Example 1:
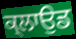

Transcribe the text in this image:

ਕ੍ਲਾਉਡ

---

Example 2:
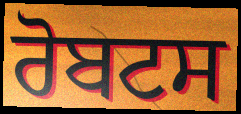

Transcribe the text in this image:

ਰੋਬਟਸ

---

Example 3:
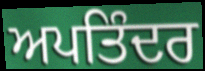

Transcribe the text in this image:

ਅਪਤਿੰਦਰ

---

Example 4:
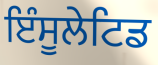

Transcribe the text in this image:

ਇੰਸੂਲੇਟਿਡ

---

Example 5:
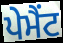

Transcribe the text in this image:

ਪੇਮੈਂਟ